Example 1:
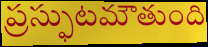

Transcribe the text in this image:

ప్రస్ఫుటమౌతుంది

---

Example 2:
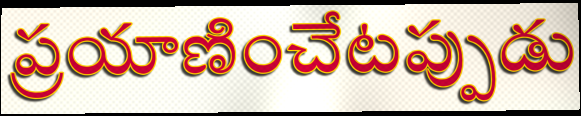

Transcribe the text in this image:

ప్రయాణించేటప్పుడు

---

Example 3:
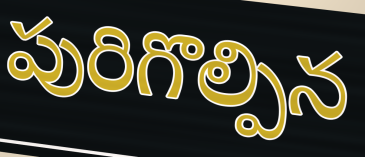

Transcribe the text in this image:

పురిగొల్పిన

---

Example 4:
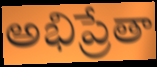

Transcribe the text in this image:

అభిప్రేతా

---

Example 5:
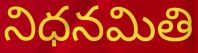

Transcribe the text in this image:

నిధనమితి